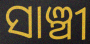
ସାଞ୍ଚୀ